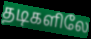
தடிகளிலே